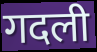
गदली